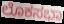
ಲೊಕಸಭಾ